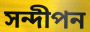
সন্দীপন